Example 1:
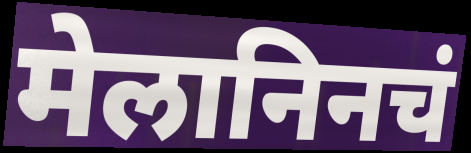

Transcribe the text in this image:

मेलानिनचं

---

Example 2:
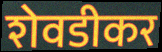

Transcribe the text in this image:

शेवडीकर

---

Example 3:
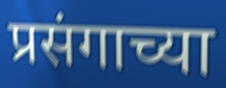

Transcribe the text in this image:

प्रसंगाच्या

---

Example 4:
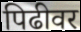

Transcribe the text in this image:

पिढीवर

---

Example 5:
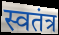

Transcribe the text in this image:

स्वतंत्र